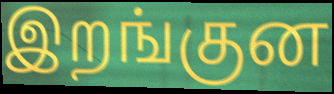
இறங்குன